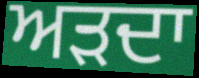
ਅੜਦਾ